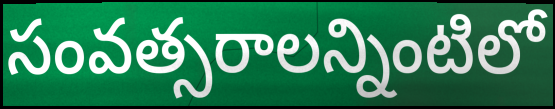
సంవత్సరాలన్నింటిలో